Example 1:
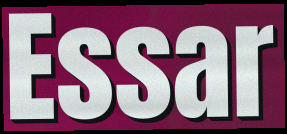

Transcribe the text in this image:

Essar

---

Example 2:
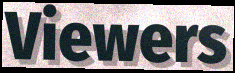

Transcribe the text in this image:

Viewers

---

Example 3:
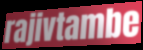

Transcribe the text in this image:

rajivtambe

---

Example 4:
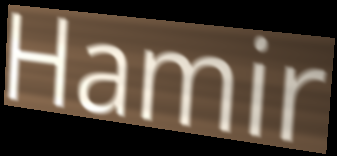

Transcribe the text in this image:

Hamir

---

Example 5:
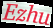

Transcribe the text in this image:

Ezhu